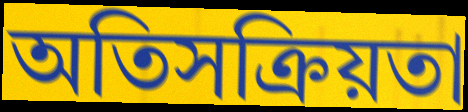
অতিসক্রিয়তা